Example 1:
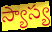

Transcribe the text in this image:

స్యాస్య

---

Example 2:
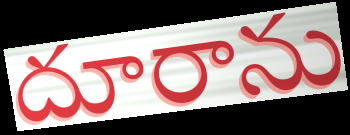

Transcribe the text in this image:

దూరాను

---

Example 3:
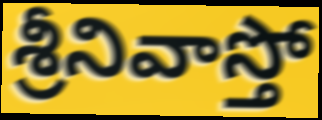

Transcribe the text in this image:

శ్రీనివాస్తో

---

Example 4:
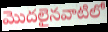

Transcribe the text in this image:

మొదలైనవాటిలో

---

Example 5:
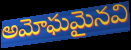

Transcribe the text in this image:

అమోఘమైనవి